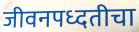
जीवनपध्दतीचा